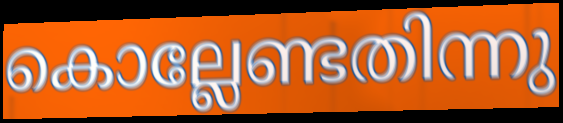
കൊല്ലേണ്ടതിന്നു